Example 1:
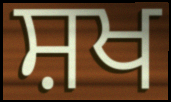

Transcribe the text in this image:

ਸ਼ਖ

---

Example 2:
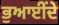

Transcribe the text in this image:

ਭੁਆਈਂਦੇ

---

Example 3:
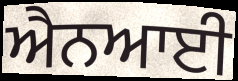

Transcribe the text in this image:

ਐਨਆਈ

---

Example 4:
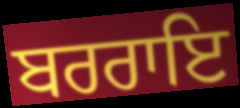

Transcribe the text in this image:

ਬਰਰਾਇ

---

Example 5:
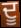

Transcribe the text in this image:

ਦੂ